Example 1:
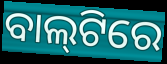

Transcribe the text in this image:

ବାଲ୍‌ଟିରେ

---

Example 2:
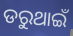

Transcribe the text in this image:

ଡରୁଥାଇଁ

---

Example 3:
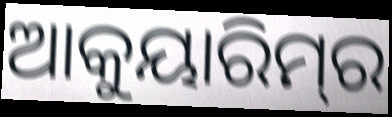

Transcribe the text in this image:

ଆକୁୟାରିମ୍‌ର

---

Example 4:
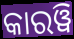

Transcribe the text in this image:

କାରୱି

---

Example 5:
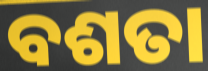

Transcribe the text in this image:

ବଶତା